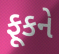
ફૂકને